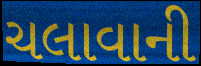
ચલાવાની